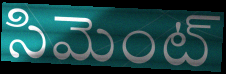
సిమెంట్